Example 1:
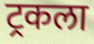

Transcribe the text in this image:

ट्रकला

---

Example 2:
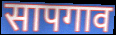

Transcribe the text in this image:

सापगाव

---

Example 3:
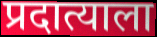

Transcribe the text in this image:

प्रदात्याला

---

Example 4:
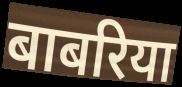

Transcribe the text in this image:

बाबरिया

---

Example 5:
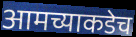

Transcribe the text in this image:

आमच्याकडेच